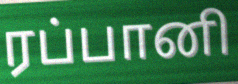
ரப்பானி